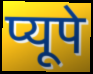
प्यूपे